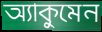
অ্যাকুমেন